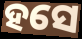
ହସେ